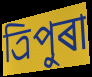
ত্ৰিপুৰা